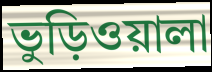
ভুড়িওয়ালা